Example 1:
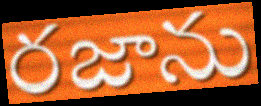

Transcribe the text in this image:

రజాను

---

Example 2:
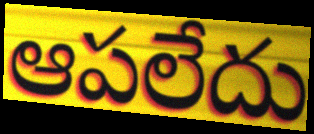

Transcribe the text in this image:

ఆపలేదు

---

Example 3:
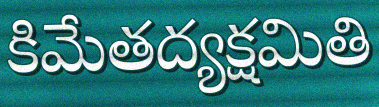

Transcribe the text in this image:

కిమేతద్యక్షమితి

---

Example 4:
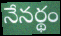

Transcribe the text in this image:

నేనర్థం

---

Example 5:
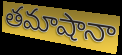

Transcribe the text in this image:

తమాషానా